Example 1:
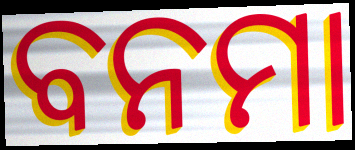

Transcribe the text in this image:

ବନମା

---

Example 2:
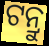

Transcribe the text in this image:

ଟନ୍ରୁ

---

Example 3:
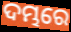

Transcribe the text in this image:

ଦମ୍ଭରେ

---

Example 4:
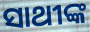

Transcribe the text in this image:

ସାଥୀଙ୍କ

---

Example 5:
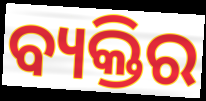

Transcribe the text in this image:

ବ୍ୟକ୍ତିର